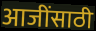
आजींसाठी